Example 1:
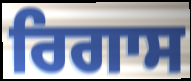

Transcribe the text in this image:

ਰਿਗਾਸ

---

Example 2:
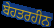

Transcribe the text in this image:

ਬੇਹਤਰਹੀਨ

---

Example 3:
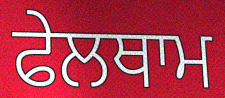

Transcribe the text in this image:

ਫੇਲਥਾਮ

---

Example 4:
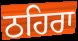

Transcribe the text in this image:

ਠਹਿਰਾ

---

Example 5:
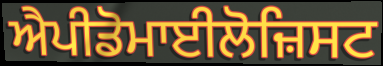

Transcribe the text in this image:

ਐਪੀਡੋਮਾਈਲੋਜ਼ਿਸਟ